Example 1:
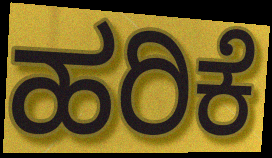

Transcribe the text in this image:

ಹರಿಕೆ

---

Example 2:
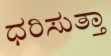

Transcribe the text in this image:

ಧರಿಸುತ್ತಾ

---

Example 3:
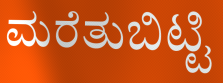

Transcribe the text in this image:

ಮರೆತುಬಿಟ್ಟಿ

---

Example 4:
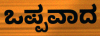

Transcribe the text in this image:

ಒಪ್ಪವಾದ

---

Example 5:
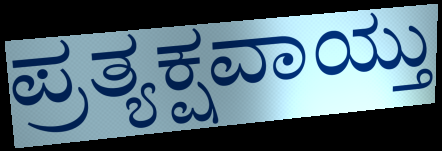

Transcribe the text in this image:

ಪ್ರತ್ಯಕ್ಷವಾಯ್ತು